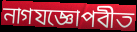
নাগযজ্ঞোপবীত